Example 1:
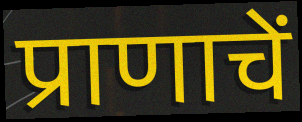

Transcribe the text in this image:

प्राणाचें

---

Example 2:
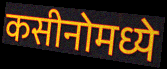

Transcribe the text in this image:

कसीनोमध्ये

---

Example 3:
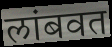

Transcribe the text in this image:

लांबवत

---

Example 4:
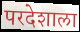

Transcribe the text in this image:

परदेशाला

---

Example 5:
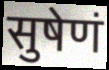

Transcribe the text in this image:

सुषेणं